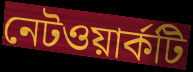
নেটওয়ার্কটি